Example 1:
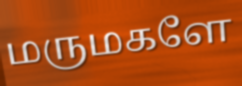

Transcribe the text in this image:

மருமகளே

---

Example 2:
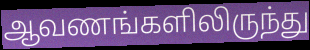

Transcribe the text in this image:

ஆவணங்களிலிருந்து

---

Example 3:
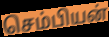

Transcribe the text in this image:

செம்பியன்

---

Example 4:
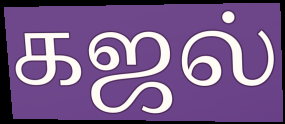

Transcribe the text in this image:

கஜல்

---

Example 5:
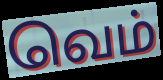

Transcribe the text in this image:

வெம்